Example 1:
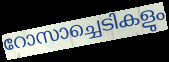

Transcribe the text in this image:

റോസാച്ചെടികളും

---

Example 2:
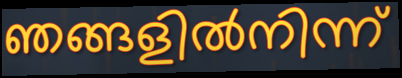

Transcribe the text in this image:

ഞങ്ങളിൽനിന്ന്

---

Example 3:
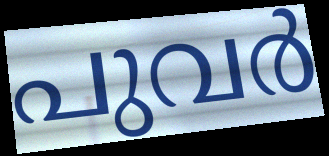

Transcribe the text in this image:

പുവർ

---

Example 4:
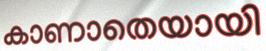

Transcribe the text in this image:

കാണാതെയായി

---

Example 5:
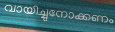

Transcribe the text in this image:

വായിച്ചുനോക്കണം